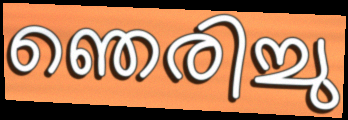
ഞെരിച്ചു